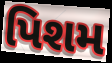
પિશમ